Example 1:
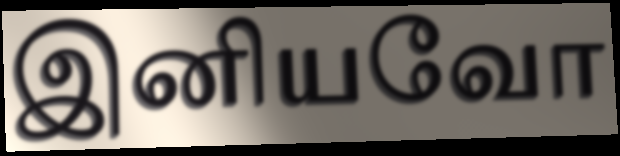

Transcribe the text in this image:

இனியவோ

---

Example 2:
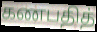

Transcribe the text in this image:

கணபதித்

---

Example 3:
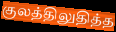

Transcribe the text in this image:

குலத்திலுதித்த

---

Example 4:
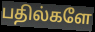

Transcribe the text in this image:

பதில்களே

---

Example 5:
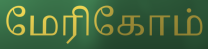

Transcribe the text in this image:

மேரிகோம்